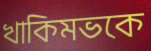
খাকিমভকে